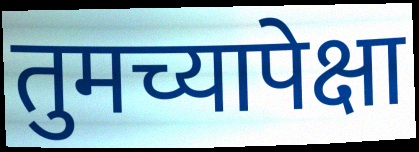
तुमच्यापेक्षा